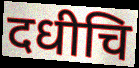
दधीचि